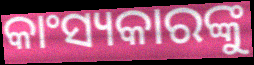
କାଂସ୍ୟକାରଙ୍କୁ